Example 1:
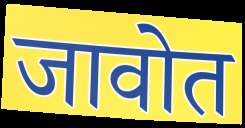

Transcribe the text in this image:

जावोत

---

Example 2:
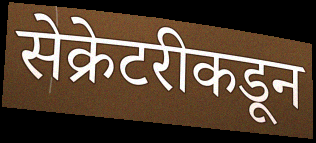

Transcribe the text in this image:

सेक्रेटरीकडून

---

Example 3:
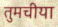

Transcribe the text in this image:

तुमचीया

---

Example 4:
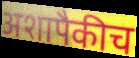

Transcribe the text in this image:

अशापैकीच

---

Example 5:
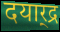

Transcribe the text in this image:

दयार्द्र